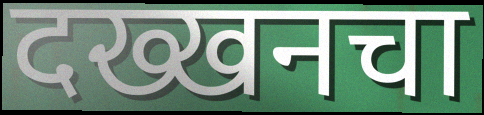
दख्खनचा